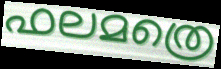
ഫലമത്രെ